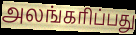
அலங்கரிப்பது